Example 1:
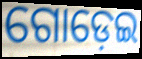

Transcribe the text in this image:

ଗୋଡ଼େଇ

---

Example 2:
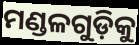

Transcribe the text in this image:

ମଣ୍ଡଳଗୁଡ଼ିକୁ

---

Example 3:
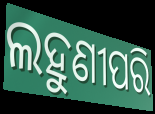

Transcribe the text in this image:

ଲହୁଣୀପରି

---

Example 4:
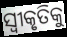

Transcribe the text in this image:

ସ୍ବୀକୃତିକୁ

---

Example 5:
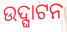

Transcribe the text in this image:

ଉଦ୍ଘାଟନ